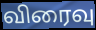
விரைவு